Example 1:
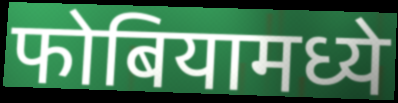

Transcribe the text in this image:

फोबियामध्ये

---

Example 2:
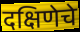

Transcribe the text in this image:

दक्षिणेचे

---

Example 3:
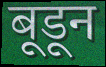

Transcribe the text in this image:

बूडून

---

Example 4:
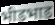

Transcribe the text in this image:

भीडभाड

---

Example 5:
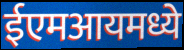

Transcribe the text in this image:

ईएमआयमध्ये